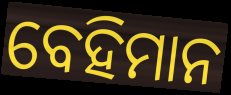
ବେହିମାନ